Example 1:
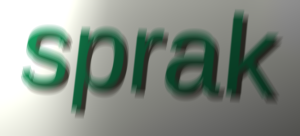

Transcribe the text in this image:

sprak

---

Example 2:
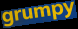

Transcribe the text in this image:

grumpy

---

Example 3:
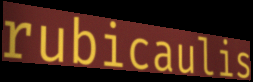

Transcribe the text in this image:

rubicaulis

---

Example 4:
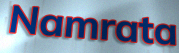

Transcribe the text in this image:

Namrata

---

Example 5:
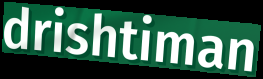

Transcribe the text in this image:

drishtiman